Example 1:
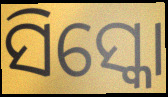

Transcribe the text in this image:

ସିସ୍କୋ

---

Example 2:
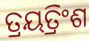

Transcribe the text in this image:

ତ୍ରୟତ୍ରିଂଶ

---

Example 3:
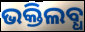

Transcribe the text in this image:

ଭକ୍ତିଲବ୍ଧ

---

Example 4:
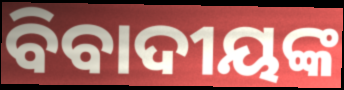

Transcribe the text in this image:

ବିବାଦୀୟଙ୍କ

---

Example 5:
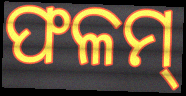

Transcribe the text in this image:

ଫଳମ୍